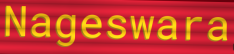
Nageswara